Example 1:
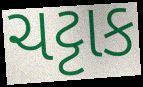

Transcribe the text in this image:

ચટ્ટાક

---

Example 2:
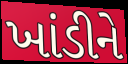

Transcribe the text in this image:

ખાંડીને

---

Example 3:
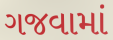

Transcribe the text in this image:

ગજવામાં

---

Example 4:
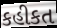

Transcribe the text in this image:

કહીકત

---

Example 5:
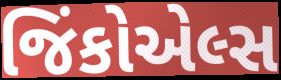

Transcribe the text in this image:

જિંકોએલ્સ